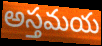
అస్తమయ